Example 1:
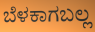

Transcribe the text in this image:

ಬೆಳಕಾಗಬಲ್ಲ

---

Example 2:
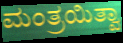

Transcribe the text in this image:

ಮಂತ್ರಯಿತ್ವಾ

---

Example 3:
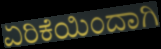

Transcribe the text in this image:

ಏರಿಕೆಯಿಂದಾಗಿ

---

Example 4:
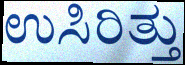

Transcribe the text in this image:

ಉಸಿರಿತ್ತು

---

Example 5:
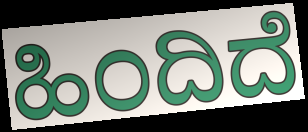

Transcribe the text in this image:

ಹಿಂದಿದೆ